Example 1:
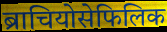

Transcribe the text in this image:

ब्राचियोसेफिलिक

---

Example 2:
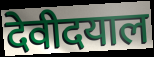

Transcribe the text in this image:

देवीदयाल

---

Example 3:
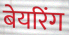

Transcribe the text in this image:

बेयरिंग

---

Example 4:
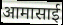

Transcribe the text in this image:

आमासाई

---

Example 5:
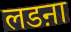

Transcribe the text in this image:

लडऩा